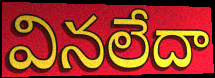
వినలేదా